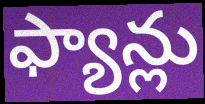
ఫ్యాన్లు